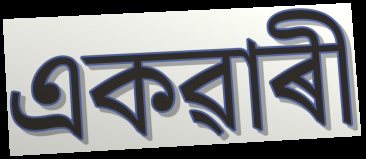
একৱাৰী